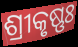
ଶ୍ରୀକୃଷ୍ଣଃ